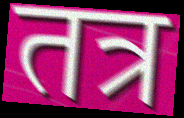
तत्र